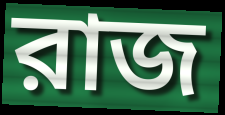
রাজ